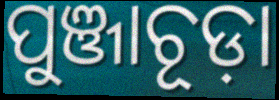
ପୁଞ୍ଜାଚୂଡ଼ା